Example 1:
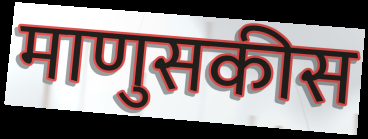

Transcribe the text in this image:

माणुसकीस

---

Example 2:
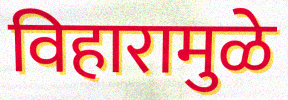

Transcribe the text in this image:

विहारामुळे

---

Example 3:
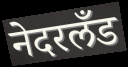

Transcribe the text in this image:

नेदरलँड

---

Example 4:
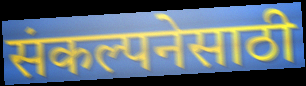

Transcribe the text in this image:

संकल्पनेसाठी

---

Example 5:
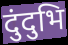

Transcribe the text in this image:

दुंदुभि